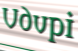
Udupi